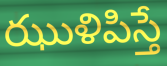
ఝుళిపిస్తే